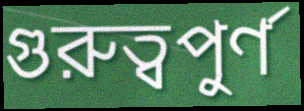
গুৰুত্বপুৰ্ণ